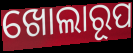
ଖୋଲାରୂପ